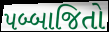
પબ્બાજિતો